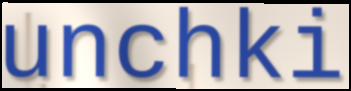
unchki